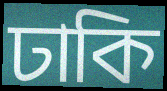
ঢাকি